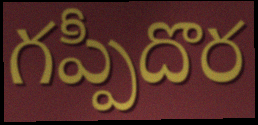
గప్పీదొర